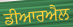
ਡੀਆਰਐਲ